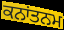
ਕਨਾਂਤਨਮ